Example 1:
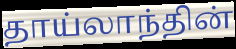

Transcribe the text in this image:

தாய்லாந்தின்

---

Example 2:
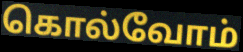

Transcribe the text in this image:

கொல்வோம்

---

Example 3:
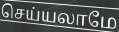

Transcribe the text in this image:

செய்யலாமே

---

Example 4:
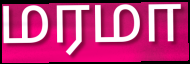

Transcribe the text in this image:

மரமா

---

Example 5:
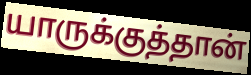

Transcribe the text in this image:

யாருக்குத்தான்